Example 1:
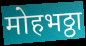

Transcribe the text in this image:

मोहभठ्ठा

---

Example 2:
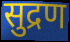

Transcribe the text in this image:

सुद्रण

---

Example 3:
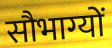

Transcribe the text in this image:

सौभाग्यों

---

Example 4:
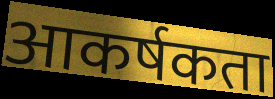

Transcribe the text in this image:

आकर्षकता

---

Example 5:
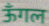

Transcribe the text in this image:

ऊँगल